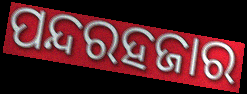
ପନ୍ଦରହଜାର